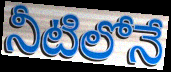
నీటిలోనే